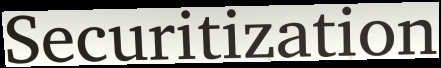
Securitization